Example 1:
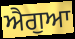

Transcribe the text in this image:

ਐਗੁਆ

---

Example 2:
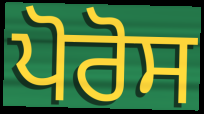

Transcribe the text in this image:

ਪੋਰੋਸ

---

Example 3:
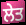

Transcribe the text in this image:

ਲੇਤ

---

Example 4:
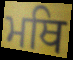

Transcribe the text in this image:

ਮਥਿ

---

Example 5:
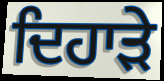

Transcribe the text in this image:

ਦਿਹਾਡ਼ੇ